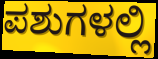
ಪಶುಗಳಲ್ಲಿ